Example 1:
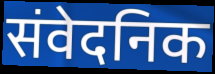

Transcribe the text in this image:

संवेदनिक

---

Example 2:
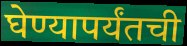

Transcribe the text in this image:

घेण्यापर्यंतची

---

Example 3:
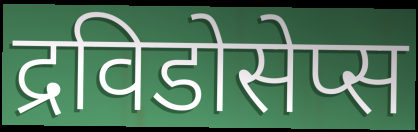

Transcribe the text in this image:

द्रविडोसेप्स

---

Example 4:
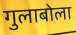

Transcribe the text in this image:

गुलाबोला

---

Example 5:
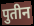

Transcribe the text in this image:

पुतीन